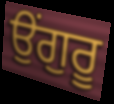
ਉਂਗੁਰੂ